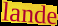
lande